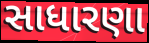
સાધારણા